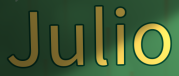
Julio